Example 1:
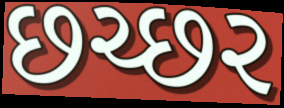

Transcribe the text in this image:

છચ્છર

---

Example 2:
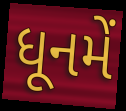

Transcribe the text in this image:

ધૂનમેં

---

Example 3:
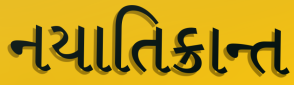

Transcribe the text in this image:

નયાતિક્રાન્ત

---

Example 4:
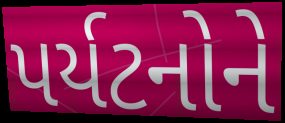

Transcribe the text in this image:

પર્યટનોને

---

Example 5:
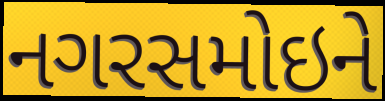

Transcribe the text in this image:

નગરસમોઇને